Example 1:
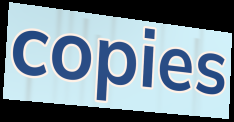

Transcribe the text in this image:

copies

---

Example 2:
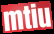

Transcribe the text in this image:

mtiu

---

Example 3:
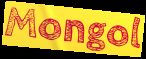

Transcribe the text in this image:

Mongol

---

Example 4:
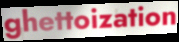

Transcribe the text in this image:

ghettoization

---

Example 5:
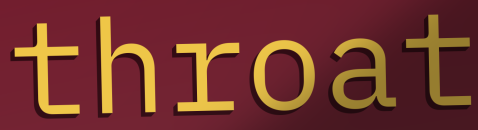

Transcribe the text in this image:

throat